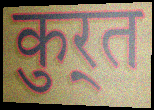
कुर्त